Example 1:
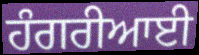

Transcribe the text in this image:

ਹੰਗਰੀਆਈ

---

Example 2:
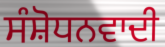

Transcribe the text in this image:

ਸੰਸ਼ੋਧਨਵਾਦੀ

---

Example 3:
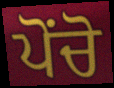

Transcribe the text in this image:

ਪੋਂਚੋ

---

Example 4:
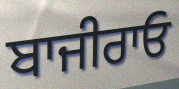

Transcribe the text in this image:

ਬਾਜੀਰਾਓ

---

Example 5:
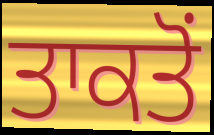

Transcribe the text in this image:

ਤਾਕਤੋਂ